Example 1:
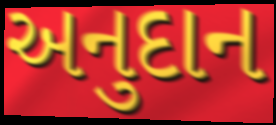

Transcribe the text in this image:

અનુદાન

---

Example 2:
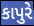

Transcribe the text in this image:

કાપુરે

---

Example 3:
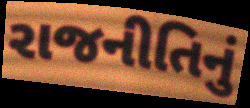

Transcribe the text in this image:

રાજનીતિનું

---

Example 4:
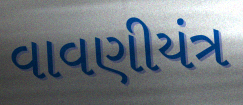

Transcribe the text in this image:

વાવણીયંત્ર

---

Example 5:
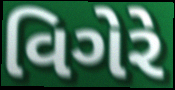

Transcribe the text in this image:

વિગેરે